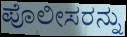
ಪೊಲೀಸರನ್ನು